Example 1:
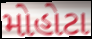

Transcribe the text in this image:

મોહોટા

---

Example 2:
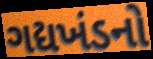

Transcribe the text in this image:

ગદ્યખંડનો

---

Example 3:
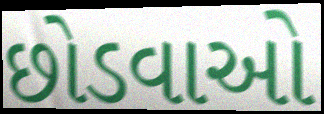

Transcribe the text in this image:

છોડવાઓ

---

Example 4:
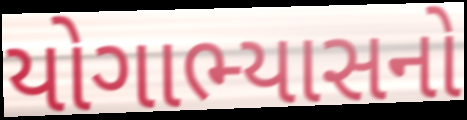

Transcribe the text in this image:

યોગાભ્યાસનો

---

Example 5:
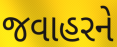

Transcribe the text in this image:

જવાહરને